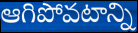
ఆగిపోవటాన్ని